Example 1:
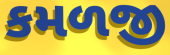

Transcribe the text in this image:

કમળજી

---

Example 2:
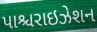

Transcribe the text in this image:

પાશ્ચરાઇઝેશન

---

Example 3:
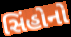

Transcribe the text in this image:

સિંહોનો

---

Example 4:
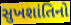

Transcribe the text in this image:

સુખશાંતિનો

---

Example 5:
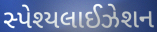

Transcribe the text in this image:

સ્પેશ્યલાઈઝેશન